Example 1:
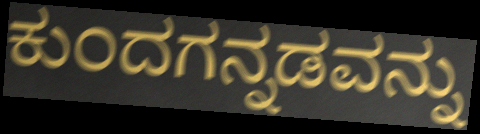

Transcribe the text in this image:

ಕುಂದಗನ್ನಡವನ್ನು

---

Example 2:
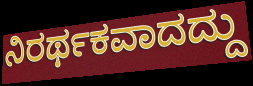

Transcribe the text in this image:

ನಿರರ್ಥಕವಾದದ್ದು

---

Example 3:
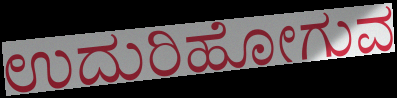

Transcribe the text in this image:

ಉದುರಿಹೋಗುವ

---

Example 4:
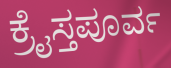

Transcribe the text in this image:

ಕ್ರೈಸ್ತಪೂರ್ವ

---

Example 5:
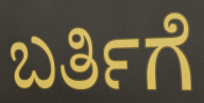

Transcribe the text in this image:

ಬರ್ತಿಗೆ